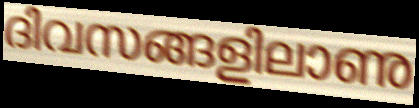
ദിവസങ്ങളിലാണു